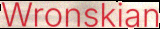
Wronskian